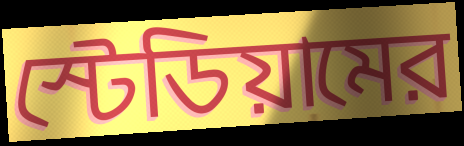
স্টেডিয়ামের